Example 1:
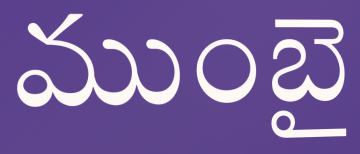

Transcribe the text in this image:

ముంబై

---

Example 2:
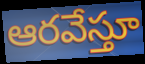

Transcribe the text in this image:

ఆరవేస్తూ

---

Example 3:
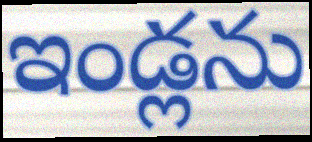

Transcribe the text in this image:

ఇండ్లను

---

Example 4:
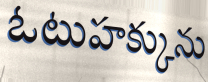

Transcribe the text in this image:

ఓటుహక్కును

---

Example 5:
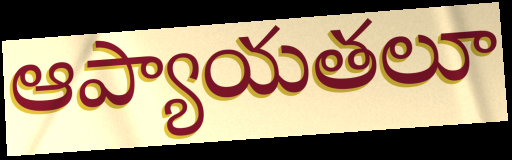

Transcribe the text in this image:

ఆప్యాయతలూ